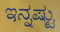
ಇನ್ನಷ್ಟು